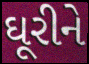
ઘૂરીને